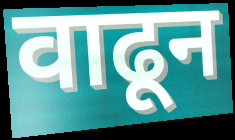
वाढून